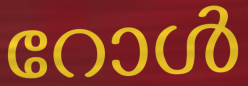
റോൾ